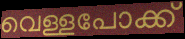
വെള്ളപോക്ക്